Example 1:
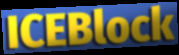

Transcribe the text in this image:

ICEBlock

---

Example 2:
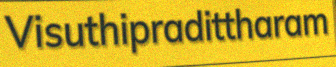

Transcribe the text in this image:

Visuthipradittharam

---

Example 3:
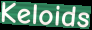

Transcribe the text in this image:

Keloids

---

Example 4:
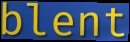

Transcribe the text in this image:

blent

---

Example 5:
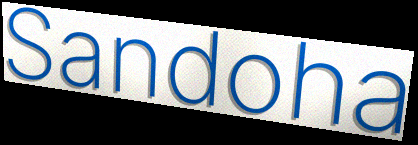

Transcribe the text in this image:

Sandoha